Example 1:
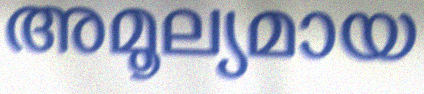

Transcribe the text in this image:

അമൂല്യമായ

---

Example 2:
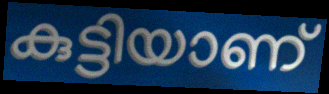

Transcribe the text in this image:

കുട്ടിയാണ്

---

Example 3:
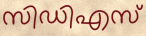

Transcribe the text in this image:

സിഡിഎസ്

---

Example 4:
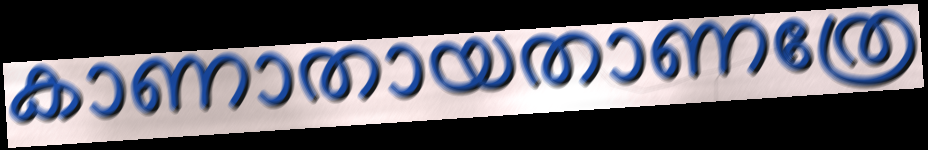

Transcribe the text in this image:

കാണാതായതാണത്രേ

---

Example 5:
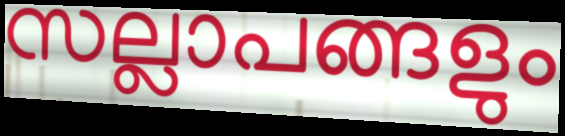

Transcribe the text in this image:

സല്ലാപങ്ങളും